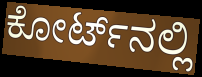
ಕೋರ್ಟ್‌ನಲ್ಲಿ